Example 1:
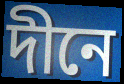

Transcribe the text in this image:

দীনে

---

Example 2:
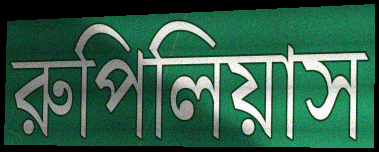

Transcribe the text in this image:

রুপিলিয়াস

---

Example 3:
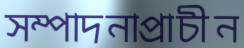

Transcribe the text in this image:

সম্পাদনাপ্রাচীন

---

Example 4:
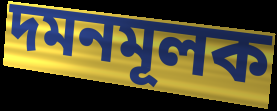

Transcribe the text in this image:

দমনমূলক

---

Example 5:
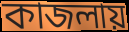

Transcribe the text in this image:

কাজলায়